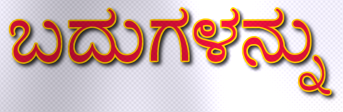
ಬದುಗಳನ್ನು